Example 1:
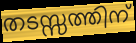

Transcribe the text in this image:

തടസ്സത്തിന്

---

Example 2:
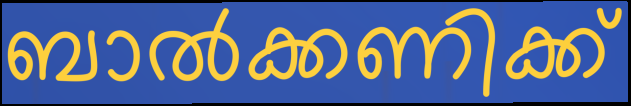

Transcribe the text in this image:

ബാൽക്കണിക്ക്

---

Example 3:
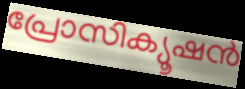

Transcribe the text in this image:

പ്രോസിക്യൂഷൻ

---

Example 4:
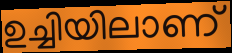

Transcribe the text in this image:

ഉച്ചിയിലാണ്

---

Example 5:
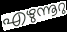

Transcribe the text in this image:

എഴുന്നൂറു